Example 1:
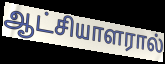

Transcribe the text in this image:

ஆட்சியாளரால்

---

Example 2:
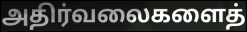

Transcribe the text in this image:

அதிர்வலைகளைத்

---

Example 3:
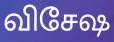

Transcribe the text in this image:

விசேஷ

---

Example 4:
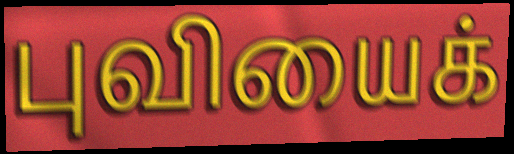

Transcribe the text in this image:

புவியைக்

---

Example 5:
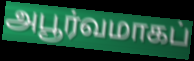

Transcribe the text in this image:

அபூர்வமாகப்